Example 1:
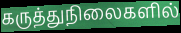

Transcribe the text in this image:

கருத்துநிலைகளில்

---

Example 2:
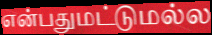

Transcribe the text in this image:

என்பதுமட்டுமல்ல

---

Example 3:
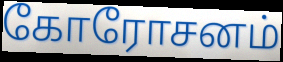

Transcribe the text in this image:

கோரோசனம்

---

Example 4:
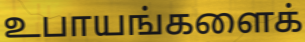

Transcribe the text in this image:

உபாயங்களைக்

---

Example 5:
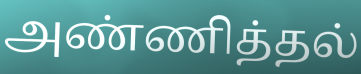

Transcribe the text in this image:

அண்ணித்தல்